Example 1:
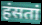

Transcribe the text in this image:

हंसतां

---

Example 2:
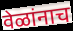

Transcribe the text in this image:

वेळांनाच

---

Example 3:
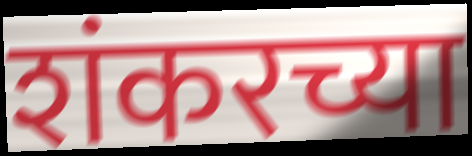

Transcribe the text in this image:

शंकरच्या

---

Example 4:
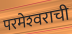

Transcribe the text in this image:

परमेश्‍वराची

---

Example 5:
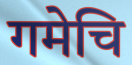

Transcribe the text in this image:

गमेचि